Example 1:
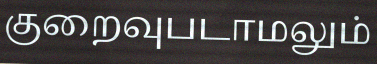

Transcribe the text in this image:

குறைவுபடாமலும்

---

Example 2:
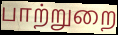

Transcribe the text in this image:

பாற்றுறை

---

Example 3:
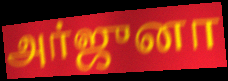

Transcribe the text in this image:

அர்ஜுனா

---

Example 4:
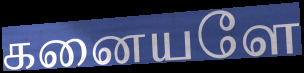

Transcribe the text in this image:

கனையளே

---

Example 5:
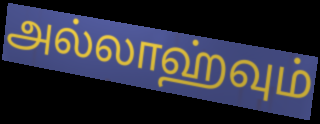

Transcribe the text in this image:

அல்லாஹ்வும்